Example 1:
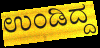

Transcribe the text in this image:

ಉಂಡಿದ್ದ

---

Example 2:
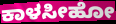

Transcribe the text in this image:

ಕಾಳಸೀಹೋ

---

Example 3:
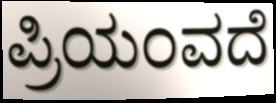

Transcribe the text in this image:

ಪ್ರಿಯಂವದೆ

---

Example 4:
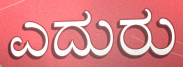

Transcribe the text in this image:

ಎದುರು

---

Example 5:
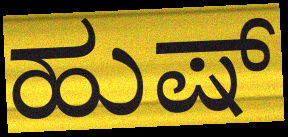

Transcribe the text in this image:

ಹುಷ್